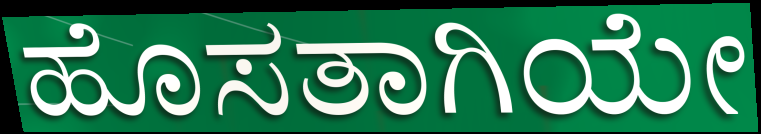
ಹೊಸತಾಗಿಯೇ